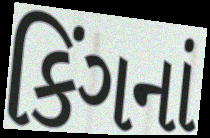
કિંગનાં